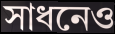
সাধনেও